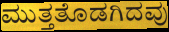
ಮುತ್ತತೊಡಗಿದವು